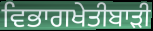
ਵਿਭਾਗਖੇਤੀਬਾੜੀ